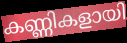
കണ്ണികളായി